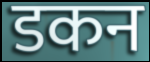
डकन